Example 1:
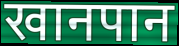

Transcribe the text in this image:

खानपान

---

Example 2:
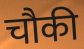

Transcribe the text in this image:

चौकी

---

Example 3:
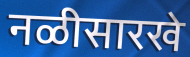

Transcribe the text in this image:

नळीसारखे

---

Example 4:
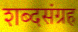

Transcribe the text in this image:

शब्दसंग्रह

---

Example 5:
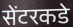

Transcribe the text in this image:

सेंटरकडे